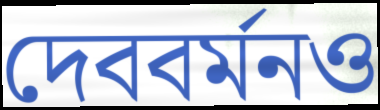
দেববর্মনও